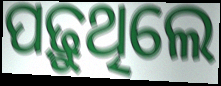
ପଢ଼ୁଥିଲେ